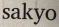
sakyo